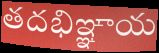
తదభిఞ్ఞాయ